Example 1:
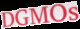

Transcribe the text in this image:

DGMOs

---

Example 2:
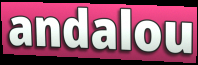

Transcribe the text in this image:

andalou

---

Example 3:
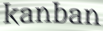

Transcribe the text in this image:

kanban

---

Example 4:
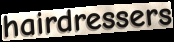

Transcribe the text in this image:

hairdressers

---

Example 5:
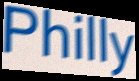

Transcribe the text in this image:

Philly